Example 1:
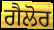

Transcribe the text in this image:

ਗੈਲੋਰ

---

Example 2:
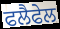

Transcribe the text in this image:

ਫਲੈਫੇਲ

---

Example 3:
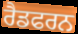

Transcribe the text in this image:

ਰੈਡਫਰਨ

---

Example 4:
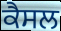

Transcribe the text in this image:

ਕੈਸਲ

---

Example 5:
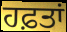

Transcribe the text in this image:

ਹਫ਼ਤਾਂ